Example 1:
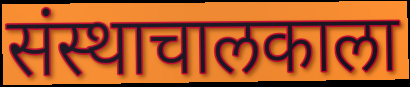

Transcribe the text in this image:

संस्थाचालकाला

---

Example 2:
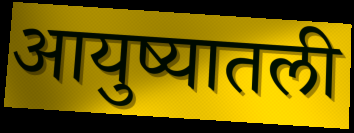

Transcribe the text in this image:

आयुष्यातली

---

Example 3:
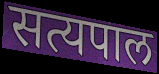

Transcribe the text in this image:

सत्यपाल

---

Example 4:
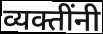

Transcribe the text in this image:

व्यक्तींनी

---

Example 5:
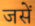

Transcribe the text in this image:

जसें